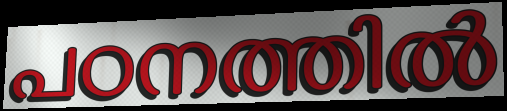
പഠനത്തിൽ